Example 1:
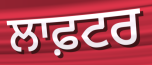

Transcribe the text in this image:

ਲਾਫ਼ਟਰ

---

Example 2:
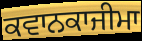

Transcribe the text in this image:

ਕਵਾਨਕਾਜੀਮਾ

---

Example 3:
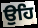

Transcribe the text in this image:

ਉਹਿ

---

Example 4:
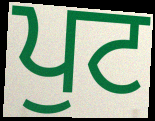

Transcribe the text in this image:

ਪੁਟ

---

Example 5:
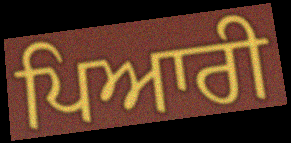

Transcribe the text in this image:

ਪਿਆਰੀ